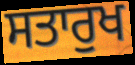
ਸਤਾਰੁਖ